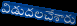
విడుదలచేశారు